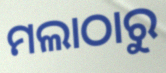
ମଲାଠାରୁ